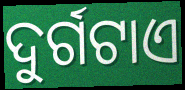
ଦୁର୍ଗଟାଏ